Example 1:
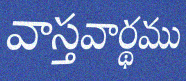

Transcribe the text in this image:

వాస్తవార్థము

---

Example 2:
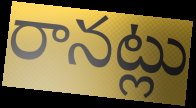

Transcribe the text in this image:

రానట్లు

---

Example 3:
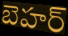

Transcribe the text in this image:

బెహర్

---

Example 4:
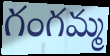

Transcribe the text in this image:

గంగమ్మ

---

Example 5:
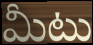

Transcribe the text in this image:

మీటు